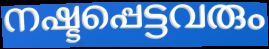
നഷ്ടപ്പെട്ടവരും